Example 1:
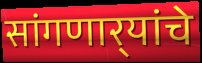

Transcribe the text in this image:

सांगणार्‍यांचे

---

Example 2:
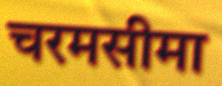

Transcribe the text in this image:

चरमसीमा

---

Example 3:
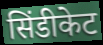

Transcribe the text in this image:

सिंडीकेट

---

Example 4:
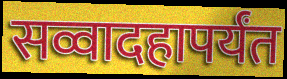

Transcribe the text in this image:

सव्वादहापर्यंत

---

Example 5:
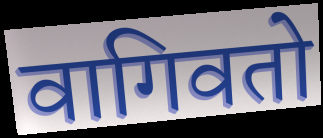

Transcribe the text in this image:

वागिवतो